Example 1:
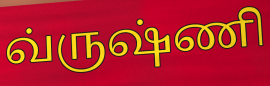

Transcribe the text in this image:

வ்ருஷ்ணி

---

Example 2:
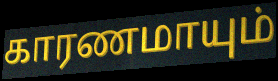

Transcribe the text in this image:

காரணமாயும்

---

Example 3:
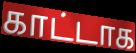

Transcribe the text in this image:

காட்டாக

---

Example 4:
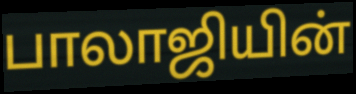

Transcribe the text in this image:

பாலாஜியின்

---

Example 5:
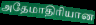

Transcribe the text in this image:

அதேமாதிரியான